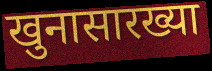
खुनासारख्या